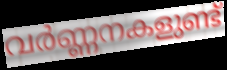
വർണ്ണനകളുണ്ട്